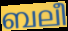
ബലീ